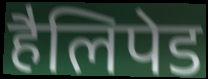
हैलिपेड